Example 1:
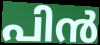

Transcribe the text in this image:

പിൻ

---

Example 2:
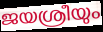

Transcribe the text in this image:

ജയശ്രീയും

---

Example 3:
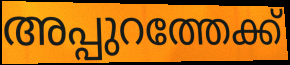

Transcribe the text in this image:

അപ്പുറത്തേക്ക്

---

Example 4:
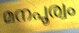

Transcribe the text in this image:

മനപൂര്വം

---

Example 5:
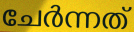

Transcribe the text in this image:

ചേർന്നത്